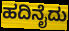
ಹದಿನೈದು